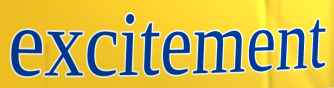
excitement